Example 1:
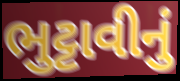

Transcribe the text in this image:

ભુટ્ટાવીનું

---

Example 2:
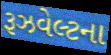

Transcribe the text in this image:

રૂઝવેલ્ટના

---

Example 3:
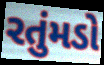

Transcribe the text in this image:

રતુંમડો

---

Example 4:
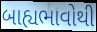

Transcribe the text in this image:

બાહ્યભાવોથી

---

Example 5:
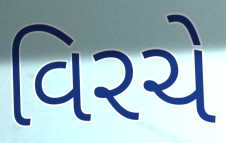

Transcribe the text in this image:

વિરચે